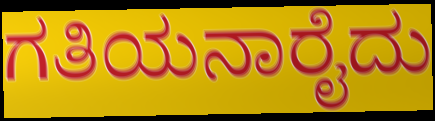
ಗತಿಯನಾರೈದು